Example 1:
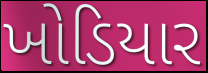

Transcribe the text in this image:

ખોડિયાર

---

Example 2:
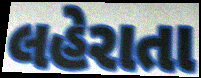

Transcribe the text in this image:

લહેરાતા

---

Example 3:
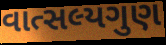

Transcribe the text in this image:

વાત્સલ્યગુણ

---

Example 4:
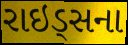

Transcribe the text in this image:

રાઇડ્સના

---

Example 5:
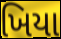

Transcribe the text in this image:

ખિયા